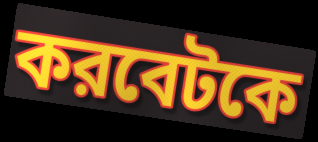
করবেটকে